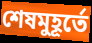
শেষমুহূর্তে